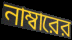
নাম্বারের